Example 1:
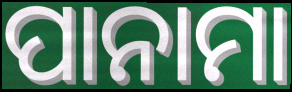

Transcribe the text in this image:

ପାନାମା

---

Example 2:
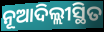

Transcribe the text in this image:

ନୂଆଦିଲ୍ଲୀସ୍ଥିତ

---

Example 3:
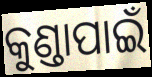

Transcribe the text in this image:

କୁଣ୍ଡାପାଇଁ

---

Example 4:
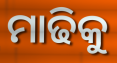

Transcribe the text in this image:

ମାଢିକୁ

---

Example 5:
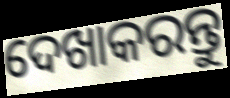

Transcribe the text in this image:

ଦେଖାକରନ୍ତୁ